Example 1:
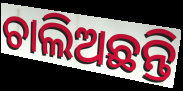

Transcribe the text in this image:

ଚାଲିଅଛନ୍ତି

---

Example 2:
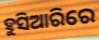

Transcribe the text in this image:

ହୁସିଆରିରେ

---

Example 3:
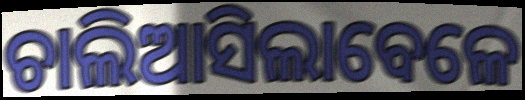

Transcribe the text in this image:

ଚାଲିଆସିଲାବେଳେ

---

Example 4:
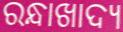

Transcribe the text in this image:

ରନ୍ଧାଖାଦ୍ୟ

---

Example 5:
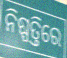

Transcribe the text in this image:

ନିଷ୍ପତ୍ତିରେ